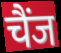
चैंज